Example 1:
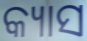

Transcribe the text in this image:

କ୍ୟାସ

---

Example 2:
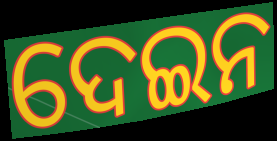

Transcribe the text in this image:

ଦେଇନ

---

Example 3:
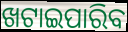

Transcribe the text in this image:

ଖଟାଇପାରିବ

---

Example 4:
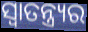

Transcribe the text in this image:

ସ୍ଵାତନ୍ତ୍ର୍ୟର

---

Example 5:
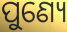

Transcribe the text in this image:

ପୁଣ୍ୟେ